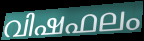
വിഷഫലം